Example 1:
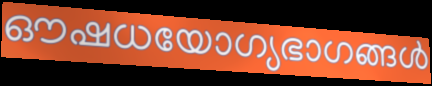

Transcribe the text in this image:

ഔഷധയോഗ്യഭാഗങ്ങൾ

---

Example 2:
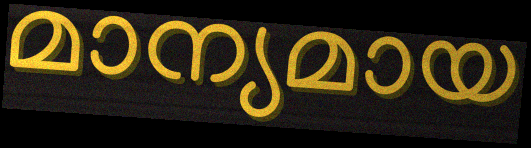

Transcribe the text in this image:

മാന്യമായ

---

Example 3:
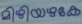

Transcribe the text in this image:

മിഴിയഴകേ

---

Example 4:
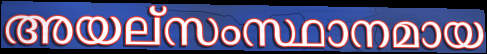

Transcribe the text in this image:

അയല്സംസ്ഥാനമായ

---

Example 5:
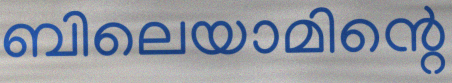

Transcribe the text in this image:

ബിലെയാമിന്റെ